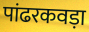
पांढरकवड़ा